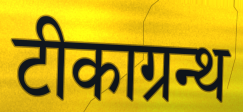
टीकाग्रन्थ